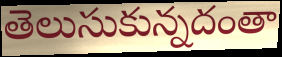
తెలుసుకున్నదంతా